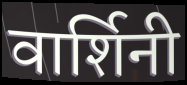
वार्शिनी